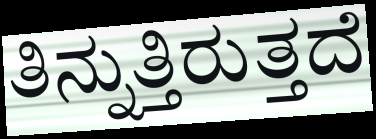
ತಿನ್ನುತ್ತಿರುತ್ತದೆ